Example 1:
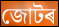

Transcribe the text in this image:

জোটৰ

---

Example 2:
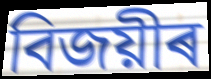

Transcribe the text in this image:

বিজয়ীৰ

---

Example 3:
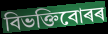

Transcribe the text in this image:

বিভক্তিবোৰৰ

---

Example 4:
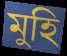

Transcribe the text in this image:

মুহি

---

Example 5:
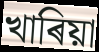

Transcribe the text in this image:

খাৰিয়া